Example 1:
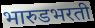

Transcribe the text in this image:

भारुडभरती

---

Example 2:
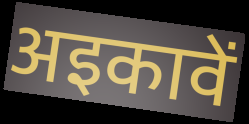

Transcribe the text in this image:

अइकावें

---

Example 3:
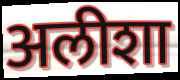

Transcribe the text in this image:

अलीशा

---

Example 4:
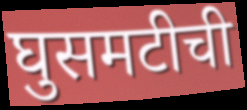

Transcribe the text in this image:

घुसमटीची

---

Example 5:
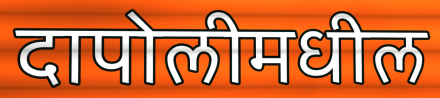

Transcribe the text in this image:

दापोलीमधील